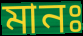
মানঃ